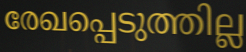
രേഖപ്പെടുത്തില്ല